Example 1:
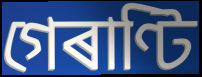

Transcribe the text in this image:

গেৰাণ্টি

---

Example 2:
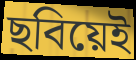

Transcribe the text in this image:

ছবিয়েই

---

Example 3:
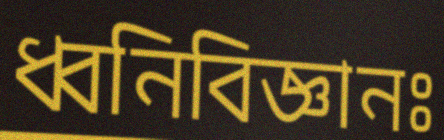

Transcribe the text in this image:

ধ্বনিবিজ্ঞানঃ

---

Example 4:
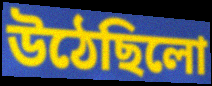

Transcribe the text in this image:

উঠেছিলো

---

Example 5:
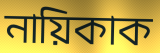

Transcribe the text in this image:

নায়িকাক